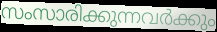
സംസാരിക്കുന്നവർക്കും